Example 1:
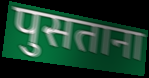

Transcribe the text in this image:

पुसताना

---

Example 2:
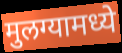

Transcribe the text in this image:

मुलग्यामध्ये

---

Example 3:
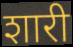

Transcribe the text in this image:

शारी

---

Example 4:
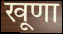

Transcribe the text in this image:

खूणा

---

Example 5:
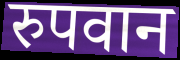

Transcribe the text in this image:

रुपवान